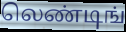
லெண்டிங்